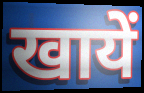
खायें